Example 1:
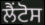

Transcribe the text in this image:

ਲੈਂਟੋਸ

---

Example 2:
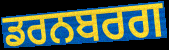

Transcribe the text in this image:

ਡਰਨਬਰਗ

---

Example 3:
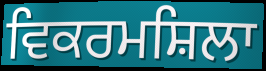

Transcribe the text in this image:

ਵਿਕਰਮਸ਼ਿਲਾ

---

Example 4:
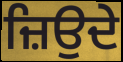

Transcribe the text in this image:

ਜ਼ਿਉਦੇ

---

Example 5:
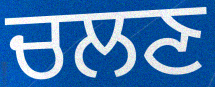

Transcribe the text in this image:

ਚਲਣ